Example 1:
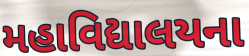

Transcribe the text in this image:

મહાવિદ્યાલયના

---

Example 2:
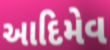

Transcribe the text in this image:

આદિમેવ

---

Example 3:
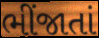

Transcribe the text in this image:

ભીંજાતાં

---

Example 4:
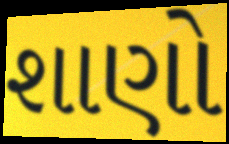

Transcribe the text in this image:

શાણો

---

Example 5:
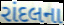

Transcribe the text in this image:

રાંદલના